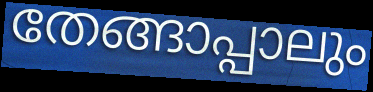
തേങ്ങാപ്പാലും